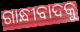
ଗାନ୍ଧୀବାଦକୁ